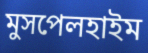
মুসপেলহাইম